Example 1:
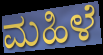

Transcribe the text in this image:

ಮಹಿಳೆ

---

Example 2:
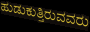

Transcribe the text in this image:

ಹುಡುಕುತ್ತಿರುವವರು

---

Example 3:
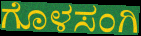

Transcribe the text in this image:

ಗೊಳಸಂಗಿ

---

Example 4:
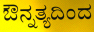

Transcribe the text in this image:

ಔನ್ನತ್ಯದಿಂದ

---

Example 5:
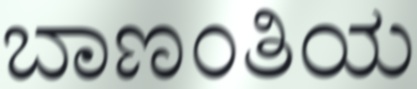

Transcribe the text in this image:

ಬಾಣಂತಿಯ